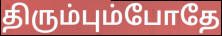
திரும்பும்போதே